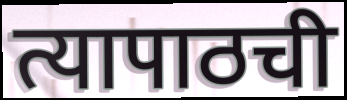
त्यापाठची